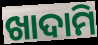
ଖାଦାମି